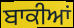
ਬਾਕੀਆਂ